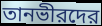
তানভীরদের